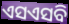
ଏସଏସବି